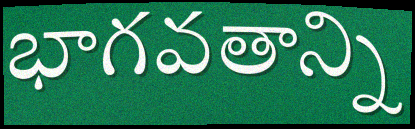
భాగవతాన్ని